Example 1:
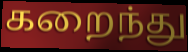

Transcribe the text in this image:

கறைந்து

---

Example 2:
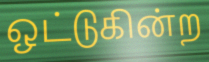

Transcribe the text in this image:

ஒட்டுகின்ற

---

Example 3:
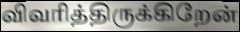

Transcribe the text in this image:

விவரித்திருக்கிறேன்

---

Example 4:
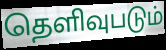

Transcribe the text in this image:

தெளிவுபடும்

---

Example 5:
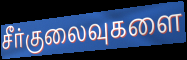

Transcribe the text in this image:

சீர்குலைவுகளை